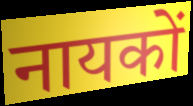
नायकों